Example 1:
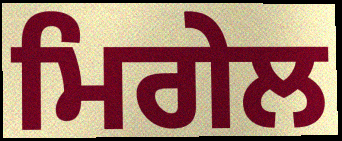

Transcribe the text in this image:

ਮਿਗੇਲ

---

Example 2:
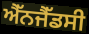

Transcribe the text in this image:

ਐੱਨਜੈੱਡਸੀ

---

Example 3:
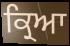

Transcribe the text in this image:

ਕ੍ਰਿਆ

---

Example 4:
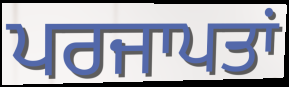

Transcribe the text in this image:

ਪਰਜਾਪਤਾਂ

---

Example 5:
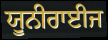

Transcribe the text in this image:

ਯੂਨੀਰਾਈਜ